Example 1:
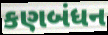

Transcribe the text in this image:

કણબંધન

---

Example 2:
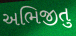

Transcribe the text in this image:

અભિજીતુ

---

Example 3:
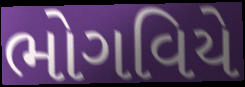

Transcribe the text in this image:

ભોગવિયે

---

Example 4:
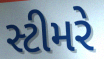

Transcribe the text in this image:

સ્ટીમરે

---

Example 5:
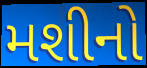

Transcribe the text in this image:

મશીનો